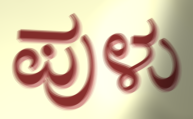
ಪುಳು